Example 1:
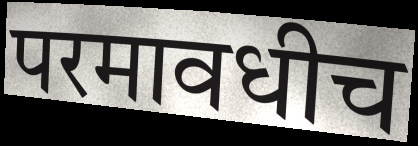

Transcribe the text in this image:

परमावधीच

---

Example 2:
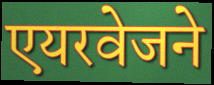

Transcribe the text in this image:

एयरवेजने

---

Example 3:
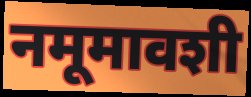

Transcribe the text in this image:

नमूमावशी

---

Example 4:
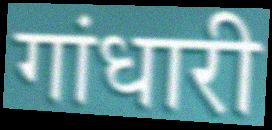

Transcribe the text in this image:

गांधारी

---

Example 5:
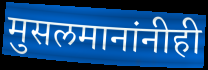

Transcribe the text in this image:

मुसलमानांनीही